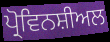
ਪ੍ਰੋਵਿਨਸ਼ੀਅਲ